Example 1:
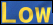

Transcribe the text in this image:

Low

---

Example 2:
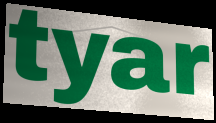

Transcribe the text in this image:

tyar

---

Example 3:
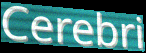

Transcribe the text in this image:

Cerebri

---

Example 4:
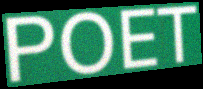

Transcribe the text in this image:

POET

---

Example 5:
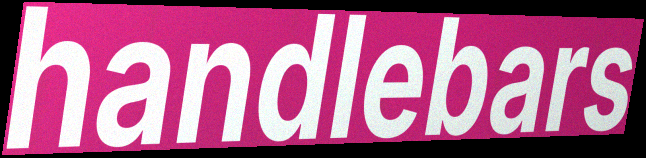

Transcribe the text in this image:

handlebars